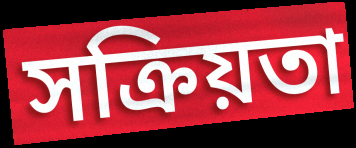
সক্ৰিয়তা